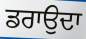
ਡਰਾਉਦਾ